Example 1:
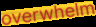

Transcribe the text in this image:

overwhelm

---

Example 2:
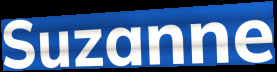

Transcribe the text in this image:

Suzanne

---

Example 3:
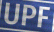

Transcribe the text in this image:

UPF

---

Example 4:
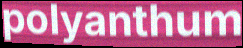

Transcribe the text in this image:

polyanthum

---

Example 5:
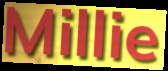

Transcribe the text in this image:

Millie